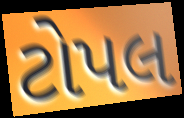
ટોપલ